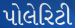
પોલેરિટી